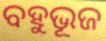
ବହୁଭୂଜ